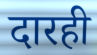
दारही